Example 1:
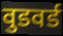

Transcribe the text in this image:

वुडवर्ड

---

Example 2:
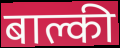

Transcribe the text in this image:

बाल्‍की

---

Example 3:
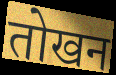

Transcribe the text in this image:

तोखन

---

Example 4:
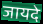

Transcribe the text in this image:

जायदे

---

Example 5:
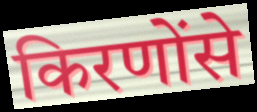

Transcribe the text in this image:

किरणोंसे